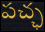
పచ్ఛ